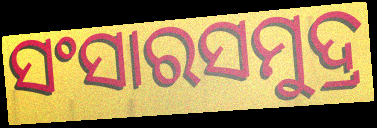
ସଂସାରସମୁଦ୍ର